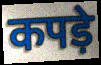
कपड़े